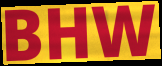
BHW